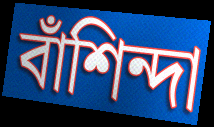
বাঁশিন্দা